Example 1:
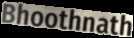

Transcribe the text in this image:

Bhoothnath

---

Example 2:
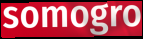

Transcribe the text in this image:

somogro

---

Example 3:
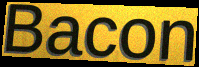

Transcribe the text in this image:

Bacon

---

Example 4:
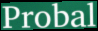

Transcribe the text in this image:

Probal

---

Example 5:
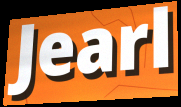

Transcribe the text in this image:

Jearl